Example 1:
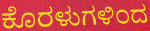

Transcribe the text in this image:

ಕೊರಳುಗಳಿಂದ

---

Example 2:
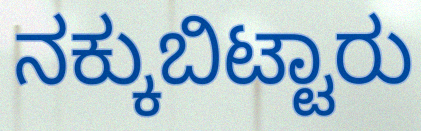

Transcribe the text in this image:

ನಕ್ಕುಬಿಟ್ಟಾರು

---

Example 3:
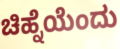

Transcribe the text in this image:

ಚಿಹ್ನೆಯೆಂದು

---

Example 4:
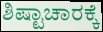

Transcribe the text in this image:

ಶಿಷ್ಟಾಚಾರಕ್ಕೆ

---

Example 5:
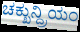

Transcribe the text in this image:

ಚಕ್ಖುನ್ದ್ರಿಯಂ